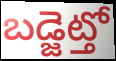
బడ్జెట్తో